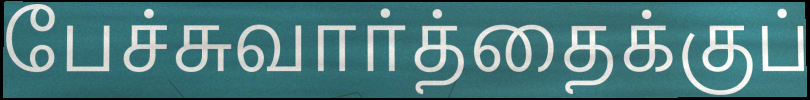
பேச்சுவார்த்தைக்குப்